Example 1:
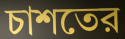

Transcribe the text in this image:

চাশতের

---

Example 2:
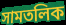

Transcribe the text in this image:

সামতলিক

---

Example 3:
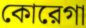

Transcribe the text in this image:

কোরেগা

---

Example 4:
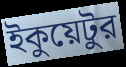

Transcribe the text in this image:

ইকুয়েটুর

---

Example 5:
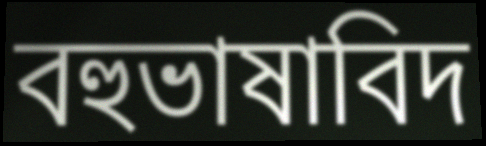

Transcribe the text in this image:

বহুভাষাবিদ